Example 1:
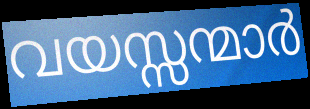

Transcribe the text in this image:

വയസ്സന്മാർ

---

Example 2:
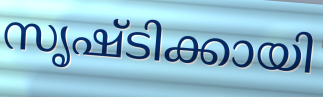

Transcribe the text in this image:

സൃഷ്ടിക്കായി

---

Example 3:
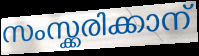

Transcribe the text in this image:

സംസ്ക്കരിക്കാന്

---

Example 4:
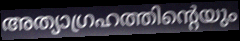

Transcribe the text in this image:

അത്യാഗ്രഹത്തിന്റെയും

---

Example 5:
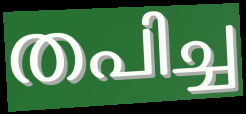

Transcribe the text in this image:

തപിച്ച